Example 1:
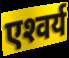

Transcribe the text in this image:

एश्‍वर्य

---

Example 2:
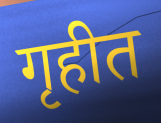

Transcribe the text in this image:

गृहीत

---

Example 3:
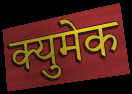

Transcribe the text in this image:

क्युमेक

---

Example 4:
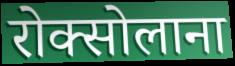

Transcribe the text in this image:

रोक्सोलाना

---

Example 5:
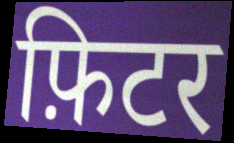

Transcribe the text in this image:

फ़िटर